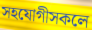
সহযোগীসকলে